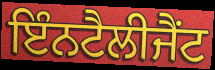
ਇੰਨਟੈਲੀਜੈਂਟ